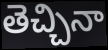
తెచ్చినా